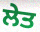
ਲੇਤ